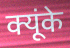
क्यूंके